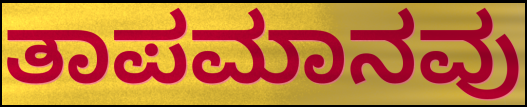
ತಾಪಮಾನವು